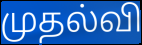
முதல்வி